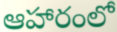
ఆహారంలో